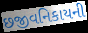
છજીવનિકાયની